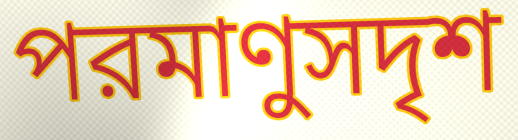
পরমাণুসদৃশ